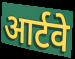
आर्टवे